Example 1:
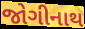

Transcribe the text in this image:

જોગીનાથ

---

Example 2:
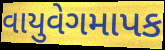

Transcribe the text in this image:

વાયુવેગમાપક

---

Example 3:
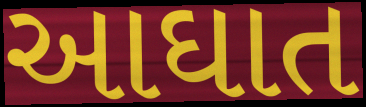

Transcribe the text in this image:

આઘાત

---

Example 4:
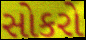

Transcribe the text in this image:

સોકરો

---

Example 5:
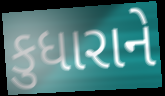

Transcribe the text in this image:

કુધારાને